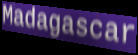
Madagascar